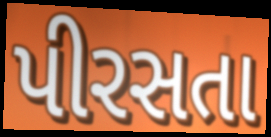
પીરસતા